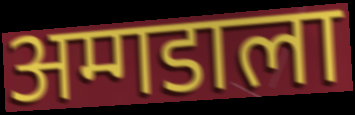
अम्गडाला